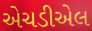
એચડીએલ